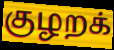
குழறக்